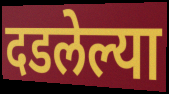
दडलेल्या